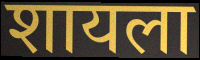
शायला